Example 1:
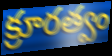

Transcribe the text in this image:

క్రూరత్వం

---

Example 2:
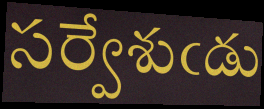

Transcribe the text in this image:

సర్వేశుఁడు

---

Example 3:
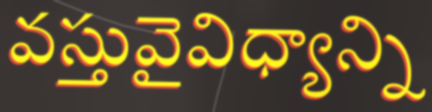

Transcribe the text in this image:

వస్తువైవిధ్యాన్ని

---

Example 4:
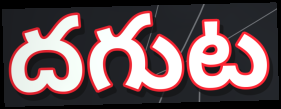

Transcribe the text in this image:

దగుట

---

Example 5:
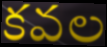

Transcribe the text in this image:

కవల